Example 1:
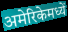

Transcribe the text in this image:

अमेरिकेमध्यें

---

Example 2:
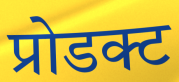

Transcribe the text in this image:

प्रोडक्ट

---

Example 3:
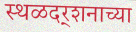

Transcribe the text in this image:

स्थळदर्शनाच्या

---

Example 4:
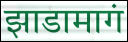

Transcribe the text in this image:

झाडामागं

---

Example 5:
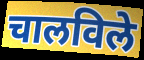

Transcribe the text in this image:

चालविले